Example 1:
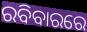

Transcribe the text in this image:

ରବିବାରରେ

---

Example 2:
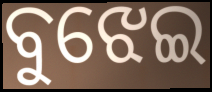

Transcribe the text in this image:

ବୁଝେଇ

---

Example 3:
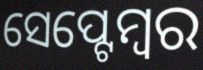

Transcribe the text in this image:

ସେପ୍ଟେମ୍ୱର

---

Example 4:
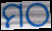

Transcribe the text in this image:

ମଠ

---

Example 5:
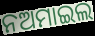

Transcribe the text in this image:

ନଅମାଇଲ